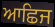
ਆਛਿਜ